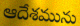
ఆదేశమును